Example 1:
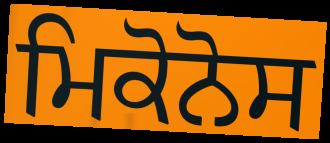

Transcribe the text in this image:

ਮਿਕੋਨੋਸ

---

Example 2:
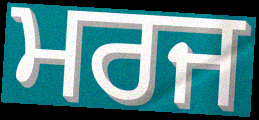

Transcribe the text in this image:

ਮਰਜ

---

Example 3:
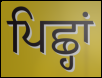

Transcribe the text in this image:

ਪਿਛ੍ਹਾਂ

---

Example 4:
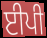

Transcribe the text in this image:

ਈਪੀ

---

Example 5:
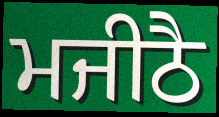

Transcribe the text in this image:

ਮਜੀਠੈ